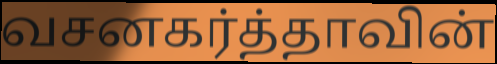
வசனகர்த்தாவின்